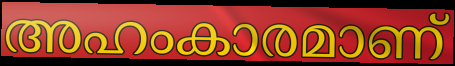
അഹംകാരമാണ്